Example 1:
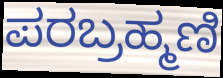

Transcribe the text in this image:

ಪರಬ್ರಹ್ಮಣಿ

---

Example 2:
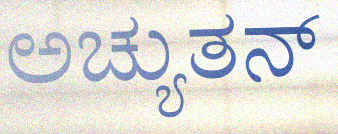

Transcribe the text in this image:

ಅಚ್ಯುತನ್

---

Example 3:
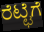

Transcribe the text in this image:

ರೆಟ್ಟೆಗೆ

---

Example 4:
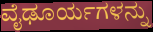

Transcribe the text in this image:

ವೈಢೂರ್ಯಗಳನ್ನು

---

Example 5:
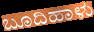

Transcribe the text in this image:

ಬೂದಿಹಾಳು